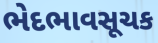
ભેદભાવસૂચક